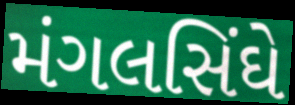
મંગલસિંઘે